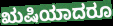
ಋಷಿಯಾದರೂ